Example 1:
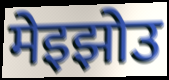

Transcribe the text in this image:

मेइझोउ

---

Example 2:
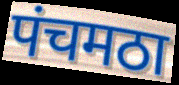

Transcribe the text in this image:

पंचमठा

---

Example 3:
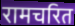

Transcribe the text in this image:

रामचरित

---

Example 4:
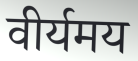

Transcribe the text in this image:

वीर्यमय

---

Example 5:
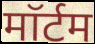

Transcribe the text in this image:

मॉर्टम